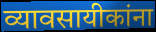
व्यावसायीकांना